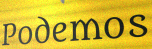
Podemos